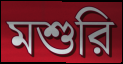
মশুরি